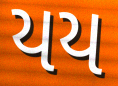
યય